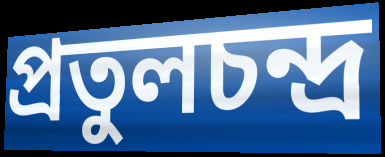
প্রতুলচন্দ্র